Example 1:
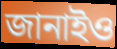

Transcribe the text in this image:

জানাইও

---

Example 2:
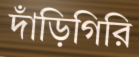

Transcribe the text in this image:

দাঁড়িগিরি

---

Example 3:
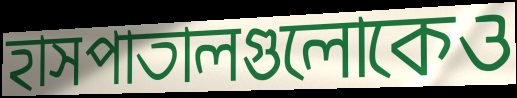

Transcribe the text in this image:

হাসপাতালগুলোকেও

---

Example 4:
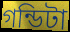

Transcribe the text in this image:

গন্ডিটা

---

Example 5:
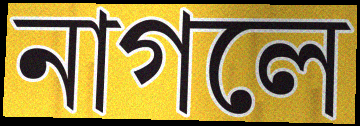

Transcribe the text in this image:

নাগলে